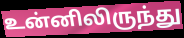
உன்னிலிருந்து